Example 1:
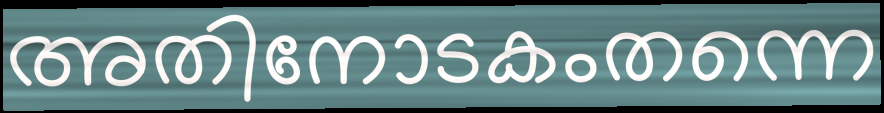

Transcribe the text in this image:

അതിനോടകംതന്നെ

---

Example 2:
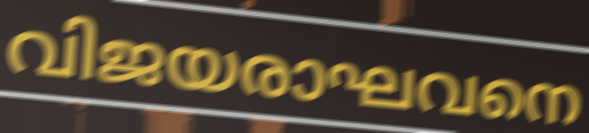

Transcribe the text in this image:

വിജയരാഘവനെ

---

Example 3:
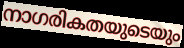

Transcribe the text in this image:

നാഗരികതയുടെയും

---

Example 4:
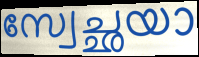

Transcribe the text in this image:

സ്വേച്ഛയാ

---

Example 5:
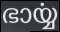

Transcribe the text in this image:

ഭാൎയ്യ